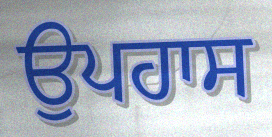
ਉਪਹਾਸ